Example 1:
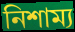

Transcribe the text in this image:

নিশাম্য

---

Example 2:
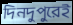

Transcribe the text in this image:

দিনদুপুরেই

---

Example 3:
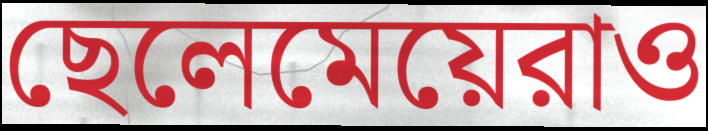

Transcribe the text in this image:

ছেলেমেয়েরাও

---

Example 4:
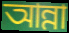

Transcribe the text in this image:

আন্না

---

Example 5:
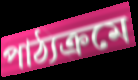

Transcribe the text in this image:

পাঠ্যক্রমে